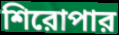
শিরোপার